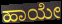
ಹಾಯೇ